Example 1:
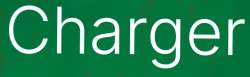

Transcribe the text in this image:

Charger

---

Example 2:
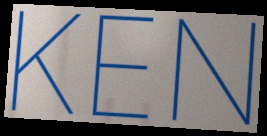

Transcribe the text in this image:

KEN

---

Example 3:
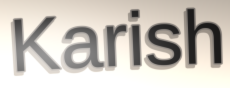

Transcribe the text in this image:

Karish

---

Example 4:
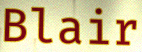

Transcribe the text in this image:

Blair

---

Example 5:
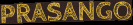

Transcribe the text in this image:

PRASANGO